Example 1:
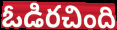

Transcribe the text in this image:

ఓడిరచింది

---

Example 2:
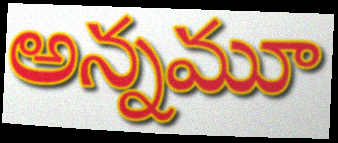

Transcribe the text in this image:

అన్నమూ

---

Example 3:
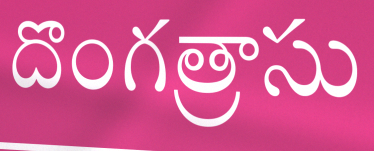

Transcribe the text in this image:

దొంగత్రాసు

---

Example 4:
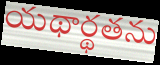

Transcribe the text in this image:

యథార్థతను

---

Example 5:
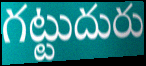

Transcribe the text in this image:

గట్టుదురు